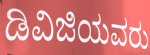
ಡಿವಿಜಿಯವರು